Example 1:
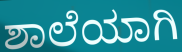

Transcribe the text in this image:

ಶಾಲೆಯಾಗಿ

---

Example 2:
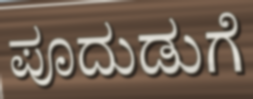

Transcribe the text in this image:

ಪೂದುಡುಗೆ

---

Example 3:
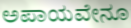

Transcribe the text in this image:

ಅಪಾಯವೇನೂ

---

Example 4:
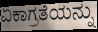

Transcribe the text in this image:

ಏಕಾಗ್ರತೆಯನ್ನು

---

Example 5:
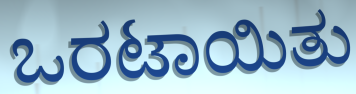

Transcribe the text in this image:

ಒರಟಾಯಿತು